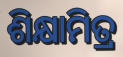
ଶିକ୍ଷାମିତ୍ର